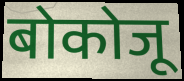
बोकोजू